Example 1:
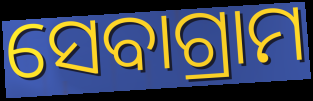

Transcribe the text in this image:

ସେବାଗ୍ରାମ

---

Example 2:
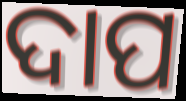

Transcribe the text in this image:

ଦାପ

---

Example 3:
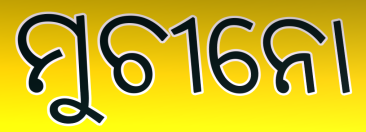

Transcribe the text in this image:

ମୁଚୀନୋ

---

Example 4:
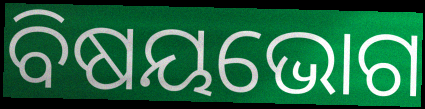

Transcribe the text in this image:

ବିଷୟଭୋଗ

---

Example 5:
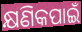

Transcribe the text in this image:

କ୍ଷଣିକପାଇଁ